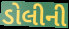
ડોલીની